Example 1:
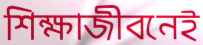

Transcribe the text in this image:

শিক্ষাজীবনেই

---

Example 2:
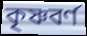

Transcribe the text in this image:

কৃষ্ণবর্ণ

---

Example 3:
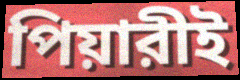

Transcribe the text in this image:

পিয়ারীই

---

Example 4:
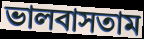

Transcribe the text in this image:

ভালবাসতাম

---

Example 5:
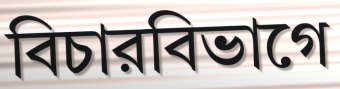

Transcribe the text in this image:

বিচারবিভাগে